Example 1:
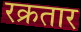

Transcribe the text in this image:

रक्रतार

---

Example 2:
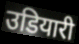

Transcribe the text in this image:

उडियारी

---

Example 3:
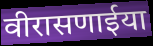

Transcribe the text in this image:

वीरासणाईया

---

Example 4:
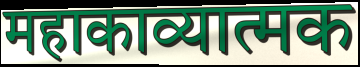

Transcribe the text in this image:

महाकाव्यात्मक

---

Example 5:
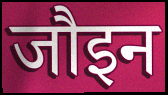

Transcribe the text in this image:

जौइन